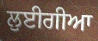
ਲੁਈਗੀਆ